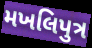
મખલિપુત્ર